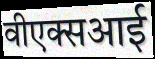
वीएक्सआई